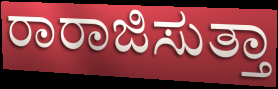
ರಾರಾಜಿಸುತ್ತಾ